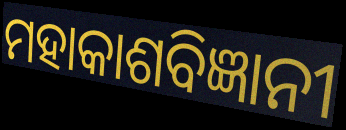
ମହାକାଶବିଜ୍ଞାନୀ